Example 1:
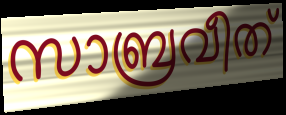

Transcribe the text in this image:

സാബ്രവീത്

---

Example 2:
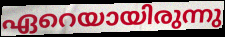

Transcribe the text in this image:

ഏറെയായിരുന്നു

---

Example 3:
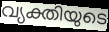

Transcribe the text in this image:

വ്യക്തിയുടെ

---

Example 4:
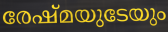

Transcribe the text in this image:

രേഷ്മയുടേയും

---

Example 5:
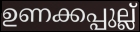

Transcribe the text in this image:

ഉണക്കപ്പുല്ല്